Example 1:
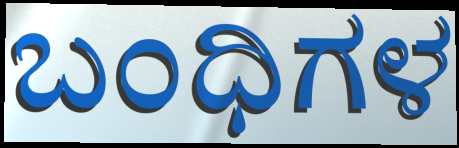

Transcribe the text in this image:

ಬಂಧಿಗಳ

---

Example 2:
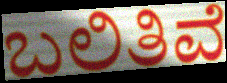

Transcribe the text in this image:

ಬಲಿತಿವೆ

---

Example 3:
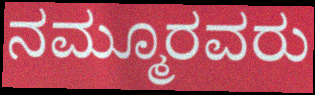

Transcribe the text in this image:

ನಮ್ಮೂರವರು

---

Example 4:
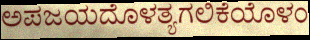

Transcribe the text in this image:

ಅಪಜಯದೊಳತ್ಯಗಲಿಕೆಯೊಳಂ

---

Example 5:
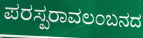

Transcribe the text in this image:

ಪರಸ್ಪರಾವಲಂಬನದ